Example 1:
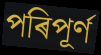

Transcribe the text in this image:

পৰিপূৰ্ণ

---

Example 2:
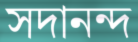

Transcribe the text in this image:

সদানন্দ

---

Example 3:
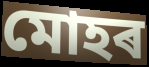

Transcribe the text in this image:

মোহৰ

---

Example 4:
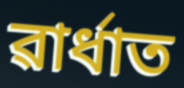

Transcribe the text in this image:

ৱাৰ্ধাত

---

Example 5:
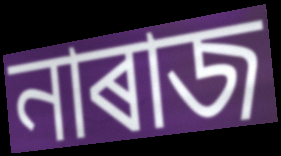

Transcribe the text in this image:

নাৰাজ